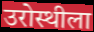
उरोस्थीला